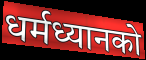
धर्मध्यानको